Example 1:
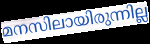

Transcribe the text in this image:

മനസിലായിരുന്നില്ല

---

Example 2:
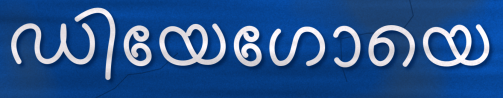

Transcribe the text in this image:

ഡിയേഗോയെ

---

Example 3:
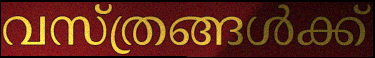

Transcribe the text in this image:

വസ്ത്രങ്ങൾക്ക്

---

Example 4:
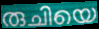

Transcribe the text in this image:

രുചിയെ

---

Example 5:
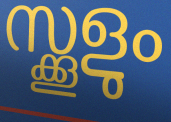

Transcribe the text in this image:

സ്ക്കൂളും